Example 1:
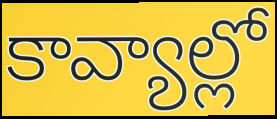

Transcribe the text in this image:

కావ్యాల్లో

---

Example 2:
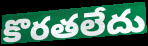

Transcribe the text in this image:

కొరతలేదు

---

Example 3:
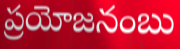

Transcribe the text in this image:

ప్రయోజనంబు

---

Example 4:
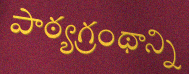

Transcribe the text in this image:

పాఠ్యగ్రంథాన్ని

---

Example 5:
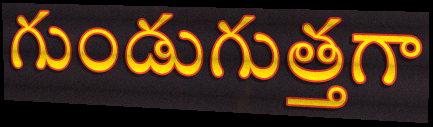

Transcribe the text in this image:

గుండుగుత్తగా